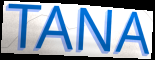
TANA